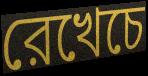
রেখেচে